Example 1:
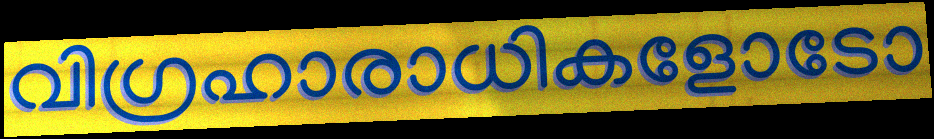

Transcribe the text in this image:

വിഗ്രഹാരാധികളോടോ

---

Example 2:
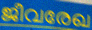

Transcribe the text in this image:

ജീവരേഖ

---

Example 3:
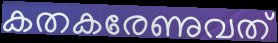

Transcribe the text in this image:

കതകരേണുവത്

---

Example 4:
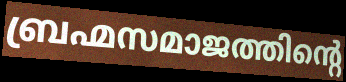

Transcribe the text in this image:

ബ്രഹ്മസമാജത്തിന്റെ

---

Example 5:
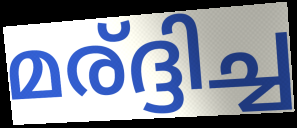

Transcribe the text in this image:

മര്ദ്ദിച്ച